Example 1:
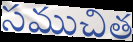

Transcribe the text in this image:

సముచిత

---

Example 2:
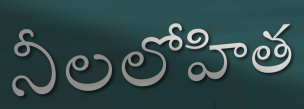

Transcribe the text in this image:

నీలలోహిత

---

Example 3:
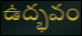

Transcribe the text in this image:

ఉద్భవం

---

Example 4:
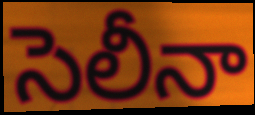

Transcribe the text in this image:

సెలీనా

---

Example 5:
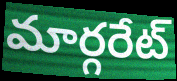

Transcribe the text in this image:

మార్గరేట్